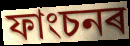
ফাংচনৰ